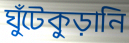
ঘুঁটেকুড়ানি